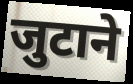
जुटाने